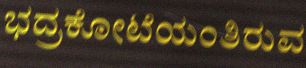
ಭದ್ರಕೋಟೆಯಂತಿರುವ